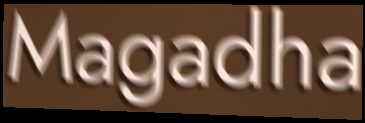
Magadha